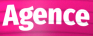
Agence